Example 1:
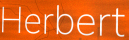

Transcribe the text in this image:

Herbert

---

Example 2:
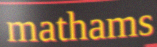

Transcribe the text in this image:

mathams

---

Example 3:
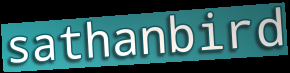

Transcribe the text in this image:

sathanbird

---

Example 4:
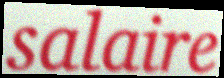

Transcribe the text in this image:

salaire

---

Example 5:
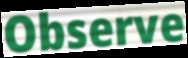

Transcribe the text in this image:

Observe